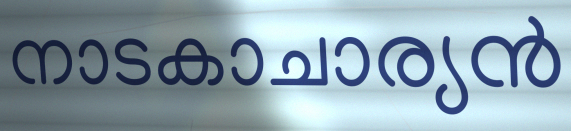
നാടകാചാര്യൻ